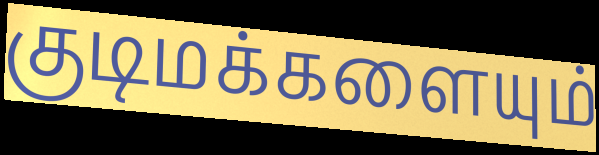
குடிமக்களையும்